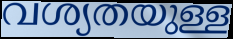
വശ്യതയുള്ള